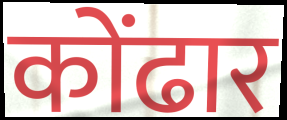
कोंढार